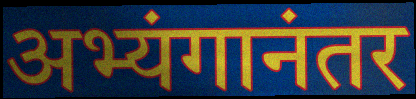
अभ्यंगानंतर